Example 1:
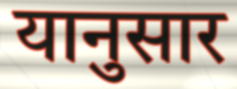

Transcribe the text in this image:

यानुसार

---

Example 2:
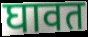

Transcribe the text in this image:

घावत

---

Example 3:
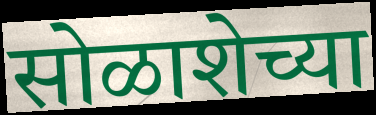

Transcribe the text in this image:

सोळाशेच्या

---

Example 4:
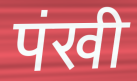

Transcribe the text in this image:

पंखी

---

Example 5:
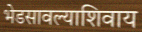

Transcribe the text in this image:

भेडसावल्याशिवाय